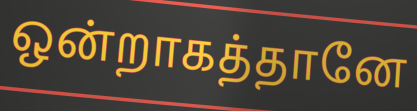
ஒன்றாகத்தானே